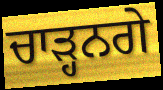
ਚਾੜ੍ਹਨਗੇ